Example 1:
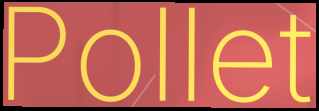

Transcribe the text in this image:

Pollet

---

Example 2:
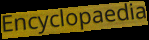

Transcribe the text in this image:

Encyclopaedia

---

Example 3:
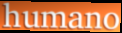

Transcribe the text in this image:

humano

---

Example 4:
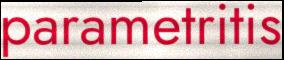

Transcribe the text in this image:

parametritis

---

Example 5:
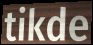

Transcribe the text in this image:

tikde